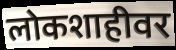
लोकशाहीवर